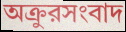
অক্রুরসংবাদ